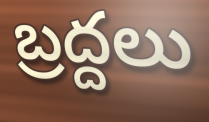
బ్రద్దలు